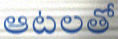
ఆటలతో